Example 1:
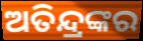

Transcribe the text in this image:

ଅତିନ୍ଦ୍ରଙ୍କର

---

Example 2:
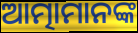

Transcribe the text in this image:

ଆତ୍ମାମାନଙ୍କ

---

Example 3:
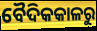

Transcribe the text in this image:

ବୈଦିକକାଳରୁ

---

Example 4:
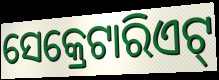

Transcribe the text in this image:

ସେକ୍ରେଟାରିଏଟ୍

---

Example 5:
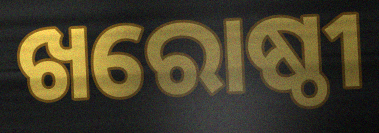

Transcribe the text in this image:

ଖରୋଷ୍ଠୀ